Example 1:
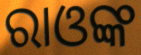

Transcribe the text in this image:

ରାଓଙ୍କ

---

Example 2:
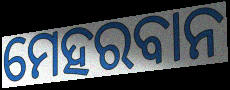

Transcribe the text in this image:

ମେହରବାନ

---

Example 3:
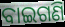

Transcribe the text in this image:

ବାଇଗଣି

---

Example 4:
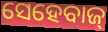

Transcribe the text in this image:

ସେହେବାଜ୍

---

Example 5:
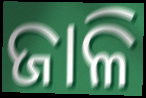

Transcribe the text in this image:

ଜାଳି